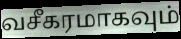
வசீகரமாகவும்